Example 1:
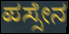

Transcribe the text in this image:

ಪಸ್ಸೇನ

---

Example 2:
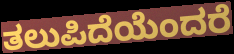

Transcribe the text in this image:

ತಲುಪಿದೆಯೆಂದರೆ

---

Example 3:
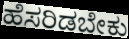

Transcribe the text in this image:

ಹೆಸರಿಡಬೇಕು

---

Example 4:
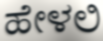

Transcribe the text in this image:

ಹೇಳಲಿ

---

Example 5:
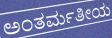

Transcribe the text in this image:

ಅಂತರ್ಮತೀಯ